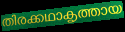
തിരക്കഥാകൃത്തായ